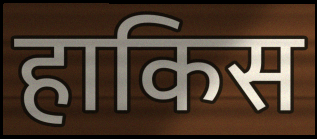
हाकिस